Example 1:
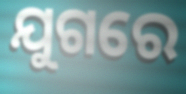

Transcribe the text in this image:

ଯୁଗରେ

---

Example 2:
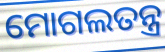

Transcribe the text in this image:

ମୋଗଲତନ୍ତ୍ର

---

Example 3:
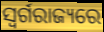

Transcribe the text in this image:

ସ୍ୱର୍ଗରାଜ୍ୟରେ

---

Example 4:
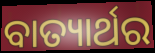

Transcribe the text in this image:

ବାତ୍ୟାର୍ଥର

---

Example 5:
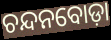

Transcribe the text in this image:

ଚନ୍ଦନବୋଡ଼ା